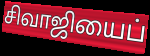
சிவாஜியைப்